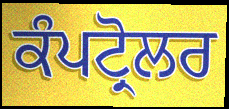
ਕੰਪਟ੍ਰੋਲਰ